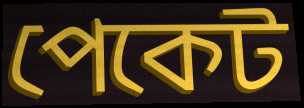
পেকেট